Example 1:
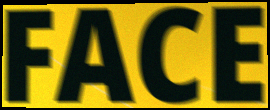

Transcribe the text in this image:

FACE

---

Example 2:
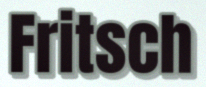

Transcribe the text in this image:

Fritsch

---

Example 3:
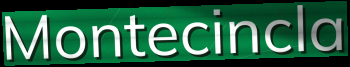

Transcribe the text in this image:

Montecincla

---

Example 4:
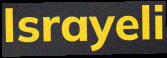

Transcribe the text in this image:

Israyeli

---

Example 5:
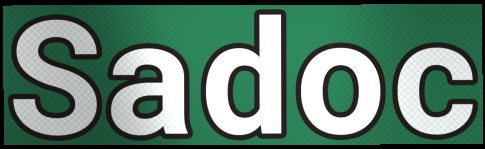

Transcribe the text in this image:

Sadoc